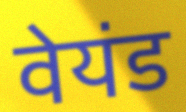
वेयंड